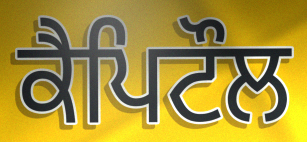
ਕੈਪਿਟੌਲ